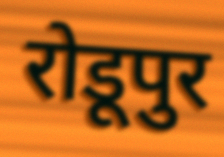
रोडूपुर